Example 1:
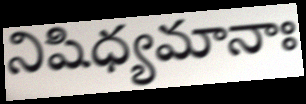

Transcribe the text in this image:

నిషిధ్యమానాః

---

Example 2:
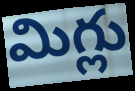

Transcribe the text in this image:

మిగ్లు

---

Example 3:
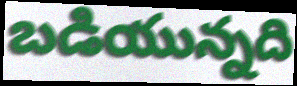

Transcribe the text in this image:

బడియున్నది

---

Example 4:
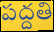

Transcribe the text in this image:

పద్దతి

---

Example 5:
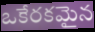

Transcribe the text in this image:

ఒకేరకమైన